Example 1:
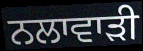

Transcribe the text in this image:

ਨਲਾਵਾੜੀ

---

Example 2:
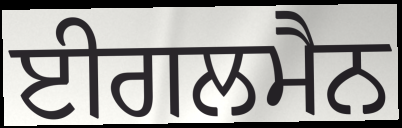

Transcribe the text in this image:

ਈਗਲਮੈਨ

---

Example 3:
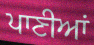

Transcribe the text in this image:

ਪਾਣੀਆਂ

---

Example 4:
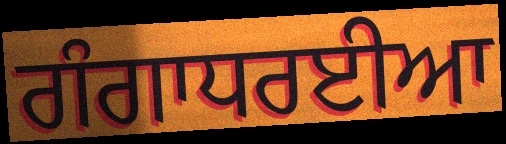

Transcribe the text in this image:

ਗੰਗਾਧਰਈਆ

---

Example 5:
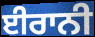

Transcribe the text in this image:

ਈਰਾਨੀ